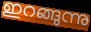
ഇറങ്ങുന്നു